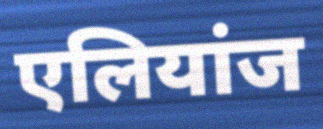
एलियांज